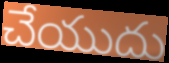
చేయుదు